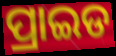
ପ୍ରାଇଡ